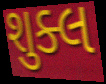
શુક્લ